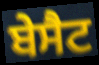
ਬੇਸੈਟ